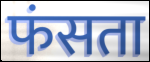
फंसता